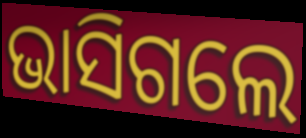
ଭାସିଗଲେ